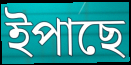
ইপাছে